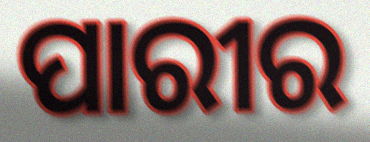
ପାରୀର